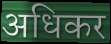
अधिकर